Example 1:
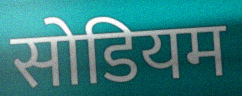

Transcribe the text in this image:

सोडियम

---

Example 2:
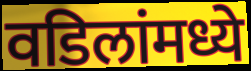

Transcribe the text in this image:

वडिलांमध्ये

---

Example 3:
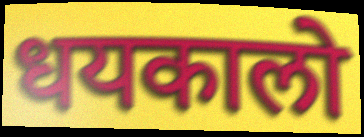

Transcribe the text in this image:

धयकालो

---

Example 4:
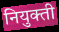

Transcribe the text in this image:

नियुक्ती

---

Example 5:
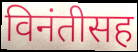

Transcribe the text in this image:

विनंतीसह